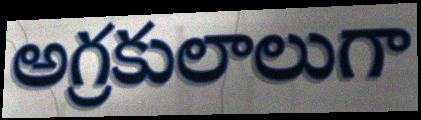
అగ్రకులాలుగా